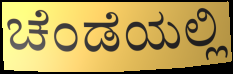
ಚೆಂಡೆಯಲ್ಲಿ